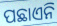
ପଛାଏନି